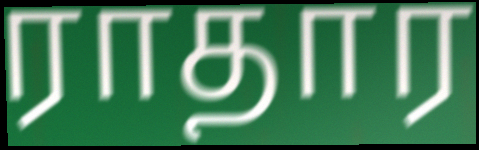
ராதார